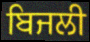
ਬਿਜਲੀ